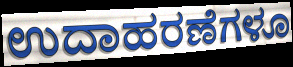
ಉದಾಹರಣೆಗಳೂ